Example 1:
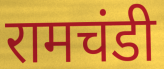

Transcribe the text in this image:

रामचंडी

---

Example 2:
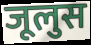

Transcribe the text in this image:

जूलुस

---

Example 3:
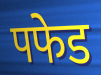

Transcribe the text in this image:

पफेड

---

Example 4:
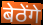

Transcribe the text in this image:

बेठेंगे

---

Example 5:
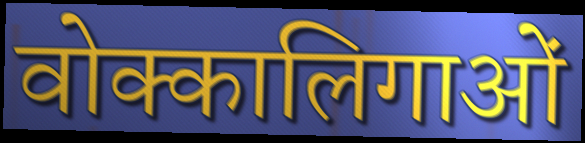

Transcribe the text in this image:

वोक्कालिगाओं